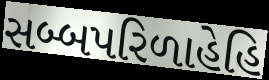
સબ્બપરિળાહેહિ